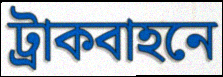
ট্রাকবাহনে